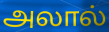
அலால்